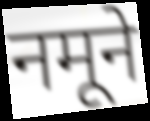
नमूने